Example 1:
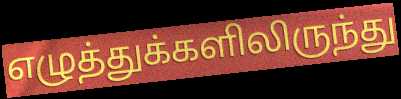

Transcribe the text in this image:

எழுத்துக்களிலிருந்து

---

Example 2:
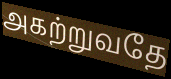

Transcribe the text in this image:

அகற்றுவதே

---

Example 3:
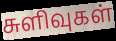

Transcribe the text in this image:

சுளிவுகள்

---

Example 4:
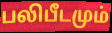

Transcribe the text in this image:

பலிபீடமும்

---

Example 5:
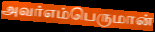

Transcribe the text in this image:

அவர்எம்பெருமான்